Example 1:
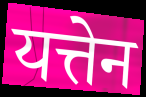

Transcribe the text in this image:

यत्तेन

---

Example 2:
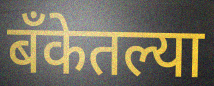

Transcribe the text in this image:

बँकेतल्या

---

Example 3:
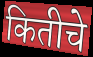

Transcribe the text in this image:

कितीचे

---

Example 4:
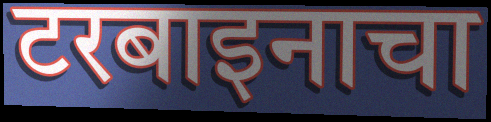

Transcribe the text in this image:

टरबाइनाचा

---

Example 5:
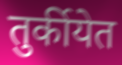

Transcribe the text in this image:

तुर्कीयेत